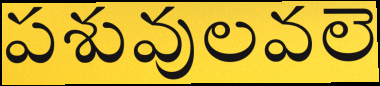
పశువులవలె